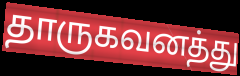
தாருகவனத்து